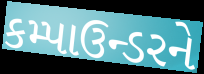
કમ્પાઉન્ડરને